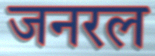
जनरल